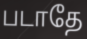
படாதே